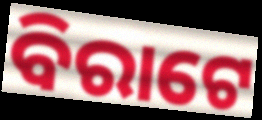
ବିରାଟେ